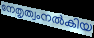
നേതൃത്വംനൽകിയ